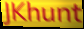
JKhunt